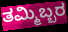
ತಮ್ಮಿಬ್ಬರ